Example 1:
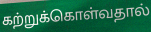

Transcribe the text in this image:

கற்றுக்கொள்வதால்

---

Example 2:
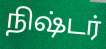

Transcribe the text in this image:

நிஷ்டர்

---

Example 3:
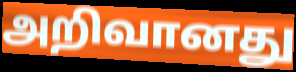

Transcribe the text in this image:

அறிவானது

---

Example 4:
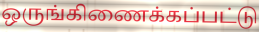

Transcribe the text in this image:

ஒருங்கிணைக்கப்பட்டு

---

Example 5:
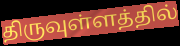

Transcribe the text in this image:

திருவுள்ளத்தில்